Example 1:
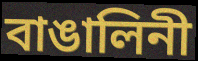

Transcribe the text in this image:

বাঙালিনী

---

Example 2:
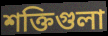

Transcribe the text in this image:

শক্তিগুলা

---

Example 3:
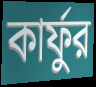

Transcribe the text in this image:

কার্ফুর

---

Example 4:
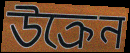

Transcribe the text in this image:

উক্রেন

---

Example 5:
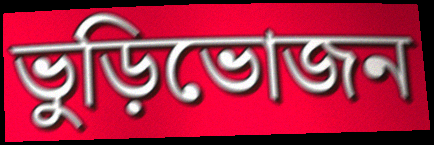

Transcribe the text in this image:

ভুড়িভোজন